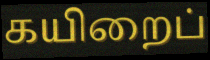
கயிறைப்